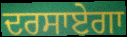
ਦਰਸਾਏਗਾ